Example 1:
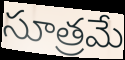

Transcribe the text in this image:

సూత్రమే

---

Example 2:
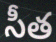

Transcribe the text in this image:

సీత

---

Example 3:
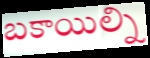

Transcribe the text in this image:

బకాయిల్ని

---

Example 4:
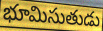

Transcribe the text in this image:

భూమిసుతుడు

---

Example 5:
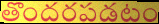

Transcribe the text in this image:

తొందరపడటం